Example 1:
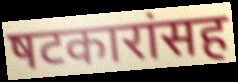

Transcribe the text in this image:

षटकारांसह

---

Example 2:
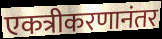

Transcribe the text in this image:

एकत्रीकरणानंतर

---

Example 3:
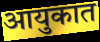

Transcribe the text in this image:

आयुकात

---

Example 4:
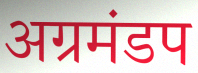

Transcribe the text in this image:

अग्रमंडप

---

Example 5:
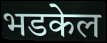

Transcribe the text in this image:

भडकेल